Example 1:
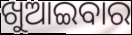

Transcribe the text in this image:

ଖୁଆଇବାର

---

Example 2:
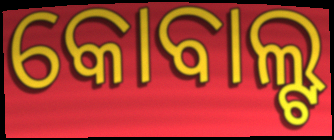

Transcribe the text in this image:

କୋବାଲ୍ଟ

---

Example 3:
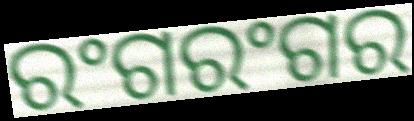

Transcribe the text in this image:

ରଂଗରଂଗର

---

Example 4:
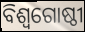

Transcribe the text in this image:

ବିଶ୍ୱଗୋଷ୍ଠୀ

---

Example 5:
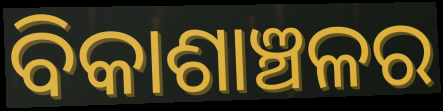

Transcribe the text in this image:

ବିକାଶାଞ୍ଚଳର